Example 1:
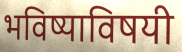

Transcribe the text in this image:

भविष्याविषयी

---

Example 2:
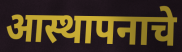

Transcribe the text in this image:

आस्थापनाचे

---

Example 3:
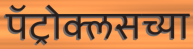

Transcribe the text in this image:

पॅट्रोक्लसच्या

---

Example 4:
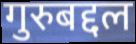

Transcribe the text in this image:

गुरुबद्दल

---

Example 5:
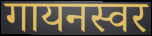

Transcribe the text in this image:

गायनस्वर